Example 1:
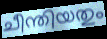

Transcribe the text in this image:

ചീന്തിയതും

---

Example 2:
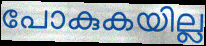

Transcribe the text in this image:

പോകുകയില്ല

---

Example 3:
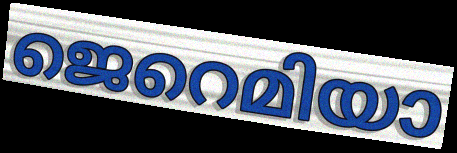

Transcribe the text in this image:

ജെറെമിയാ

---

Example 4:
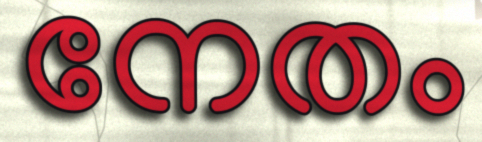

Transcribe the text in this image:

നേതം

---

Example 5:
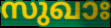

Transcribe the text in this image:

സുഖാഃ